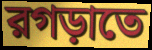
রগড়াতে